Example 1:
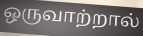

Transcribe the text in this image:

ஒருவாற்றால்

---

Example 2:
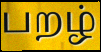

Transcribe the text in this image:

பறழ்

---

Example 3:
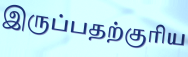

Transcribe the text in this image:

இருப்பதற்குரிய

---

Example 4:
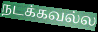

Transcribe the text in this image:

நடக்கவல்ல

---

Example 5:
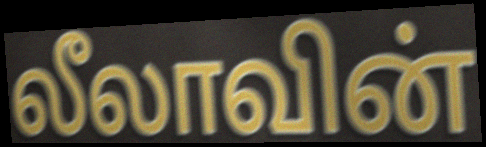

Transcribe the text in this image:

லீலாவின்